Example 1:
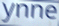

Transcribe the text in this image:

ynne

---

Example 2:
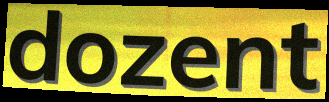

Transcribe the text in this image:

dozent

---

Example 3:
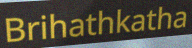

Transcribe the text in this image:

Brihathkatha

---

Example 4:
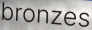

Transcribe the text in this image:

bronzes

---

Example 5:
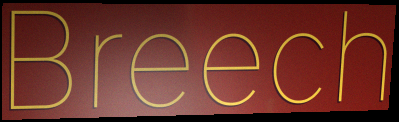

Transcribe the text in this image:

Breech